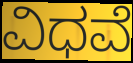
ವಿಧವೆ